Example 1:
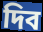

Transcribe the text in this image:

দিব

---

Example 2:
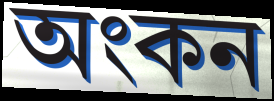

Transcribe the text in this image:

অংকন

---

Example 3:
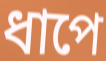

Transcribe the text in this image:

ধাপে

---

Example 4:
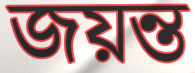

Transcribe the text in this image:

জয়ন্ত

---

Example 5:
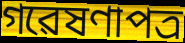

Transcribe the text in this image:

গৱেষণাপত্ৰ